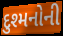
દુશ્મનોની